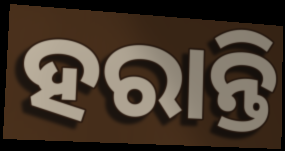
ହରାନ୍ତି